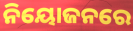
ନିୟୋଜନରେ